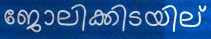
ജോലിക്കിടയില്